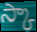
స్కా